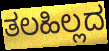
ತಲಹಿಲ್ಲದ